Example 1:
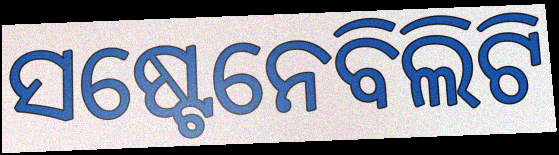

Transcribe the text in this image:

ସଷ୍ଟେନେବିଲିଟି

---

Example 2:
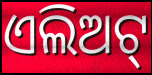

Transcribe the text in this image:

ଏଲିଅଟ୍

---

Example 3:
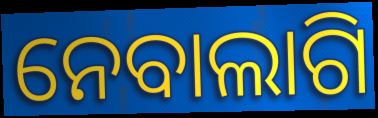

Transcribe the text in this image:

ନେବାଲାଗି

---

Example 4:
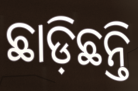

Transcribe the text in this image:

ଛାଡ଼ିଛନ୍ତି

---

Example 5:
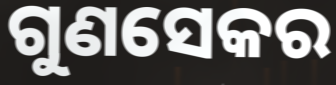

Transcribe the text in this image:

ଗୁଣସେକର